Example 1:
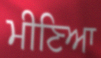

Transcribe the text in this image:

ਮੀਣਿਆ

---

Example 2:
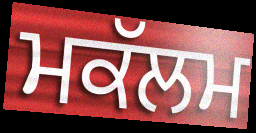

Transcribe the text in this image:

ਮਕੱਲਮ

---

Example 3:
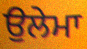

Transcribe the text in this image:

ਉਲੇਮਾ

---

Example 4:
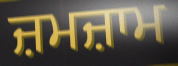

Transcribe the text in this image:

ਜ਼ਮਜ਼ਾਮ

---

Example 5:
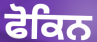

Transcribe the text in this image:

ਫੋਕਿਨ